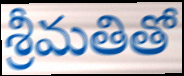
శ్రీమతితో